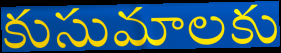
కుసుమాలకు